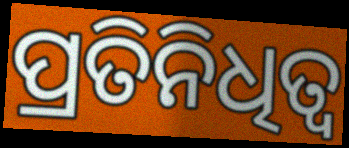
ପ୍ରତିନିଧିତ୍ୱ